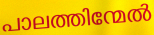
പാലത്തിന്മേൽ